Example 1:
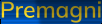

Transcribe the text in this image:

Premagni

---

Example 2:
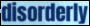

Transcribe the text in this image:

disorderly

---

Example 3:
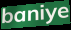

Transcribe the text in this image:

baniye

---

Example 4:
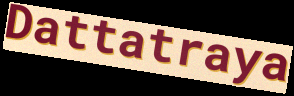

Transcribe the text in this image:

Dattatraya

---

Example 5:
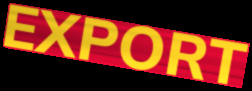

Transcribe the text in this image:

EXPORT